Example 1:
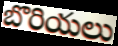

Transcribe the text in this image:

బొరియలు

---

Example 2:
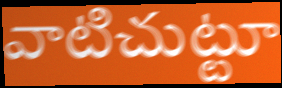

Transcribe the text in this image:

వాటిచుట్టూ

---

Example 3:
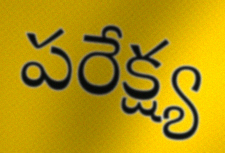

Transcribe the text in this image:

పరేక్ష్య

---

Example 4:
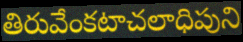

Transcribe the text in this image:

తిరువేంకటాచలాధిపుని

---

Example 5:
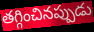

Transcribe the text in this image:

తగ్గించినప్పుడు